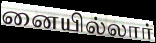
னையில்லார்